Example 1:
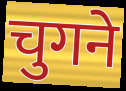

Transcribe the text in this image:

चुगने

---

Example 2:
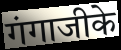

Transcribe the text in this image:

गंगाजीके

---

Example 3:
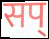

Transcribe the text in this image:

सप्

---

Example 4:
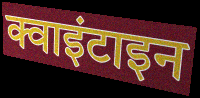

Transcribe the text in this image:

क्वाइंटाइन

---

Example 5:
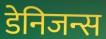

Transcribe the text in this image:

डेनिजन्स